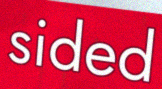
sided